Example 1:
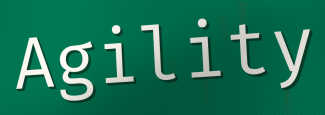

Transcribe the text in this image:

Agility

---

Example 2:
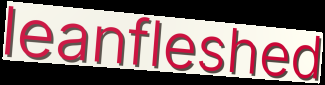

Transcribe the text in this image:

leanfleshed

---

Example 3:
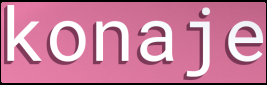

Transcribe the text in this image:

konaje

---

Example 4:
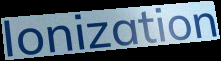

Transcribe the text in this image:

Ionization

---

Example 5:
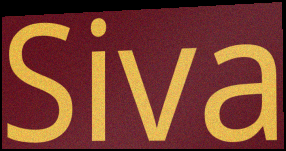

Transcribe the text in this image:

Siva